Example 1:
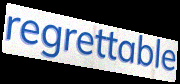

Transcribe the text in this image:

regrettable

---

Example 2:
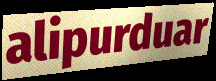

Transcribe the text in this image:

alipurduar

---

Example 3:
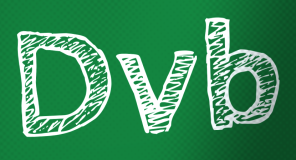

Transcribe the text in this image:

Dvb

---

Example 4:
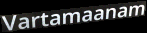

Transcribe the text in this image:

Vartamaanam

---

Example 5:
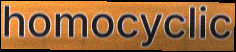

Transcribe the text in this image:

homocyclic